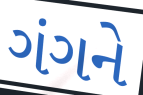
ગંગને